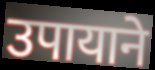
उपायाने